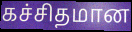
கச்சிதமான